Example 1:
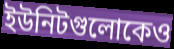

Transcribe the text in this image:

ইউনিটগুলোকেও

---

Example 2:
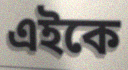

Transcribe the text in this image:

এইকে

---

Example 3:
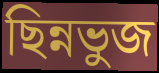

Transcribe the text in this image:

ছিন্নভুজ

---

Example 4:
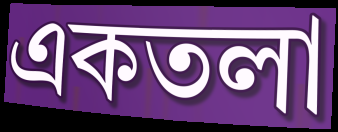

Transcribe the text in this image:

একতলা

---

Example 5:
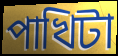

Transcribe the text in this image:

পাখিটা